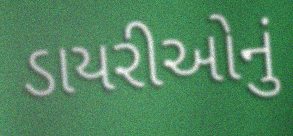
ડાયરીઓનું